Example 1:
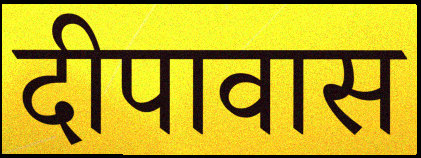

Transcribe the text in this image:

दीपावास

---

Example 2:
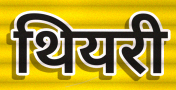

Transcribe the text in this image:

थियरी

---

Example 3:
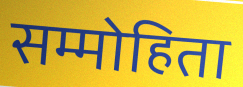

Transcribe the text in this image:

सम्मोहिता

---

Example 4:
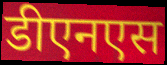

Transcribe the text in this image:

डीएनएस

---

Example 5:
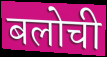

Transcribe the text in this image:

बलोची